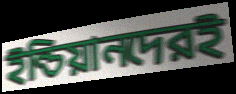
ইন্ডিয়ানদেরই